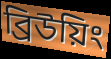
ব্রিউয়িং